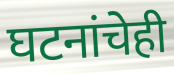
घटनांचेही